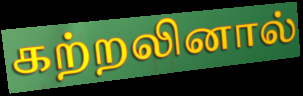
கற்றலினால்